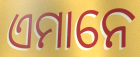
ଏମାନେ